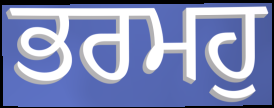
ਭਰਮਹੁ